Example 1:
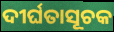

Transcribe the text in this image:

ଦୀର୍ଘତାସୂଚକ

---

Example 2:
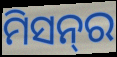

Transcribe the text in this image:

ମିସନ୍‌ର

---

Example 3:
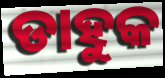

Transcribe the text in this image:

ଡାହୁକ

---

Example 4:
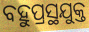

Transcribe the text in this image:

ବହୁପ୍ରସ୍ଥଯୁକ୍ତ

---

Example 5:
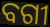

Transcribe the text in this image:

ବଗୀ